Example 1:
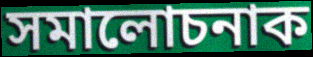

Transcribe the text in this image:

সমালোচনাক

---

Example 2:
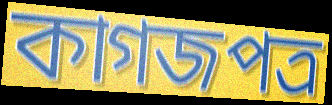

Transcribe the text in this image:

কাগজপত্ৰ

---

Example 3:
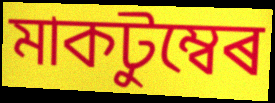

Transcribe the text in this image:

মাকটুম্বেৰ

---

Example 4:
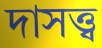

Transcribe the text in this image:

দাসত্ত্ব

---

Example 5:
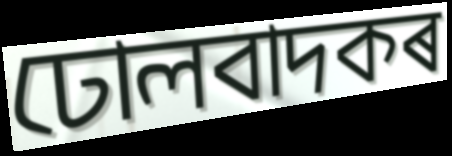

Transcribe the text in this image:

ঢোলবাদকৰ